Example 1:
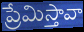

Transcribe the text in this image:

ప్రేమిస్తావా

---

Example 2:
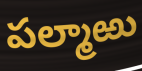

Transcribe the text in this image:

పల్మాఱు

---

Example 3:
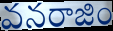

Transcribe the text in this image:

వనరాజిం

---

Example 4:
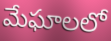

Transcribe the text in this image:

మేఘాలలో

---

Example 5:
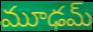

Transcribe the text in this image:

మూఢమ్